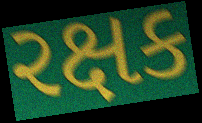
રક્ષક